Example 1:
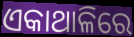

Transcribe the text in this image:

ଏକାଥାଳିରେ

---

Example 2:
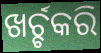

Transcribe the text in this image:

ଖର୍ଚ୍ଚକରି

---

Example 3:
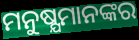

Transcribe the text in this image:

ମନୁଷ୍ଯମାନଙ୍କର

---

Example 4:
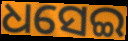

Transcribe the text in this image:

ଧସେଇ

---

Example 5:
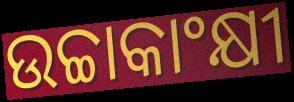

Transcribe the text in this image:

ଉଚ୍ଚାକାଂକ୍ଷୀ